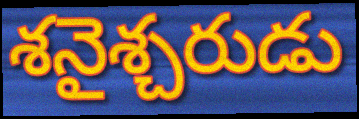
శనైశ్చరుడు